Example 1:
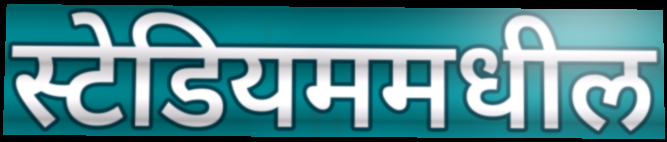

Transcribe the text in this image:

स्टेडियममधील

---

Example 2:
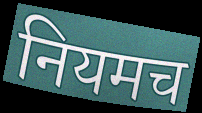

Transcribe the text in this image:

नियमच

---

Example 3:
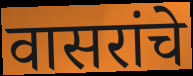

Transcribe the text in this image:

वासरांचे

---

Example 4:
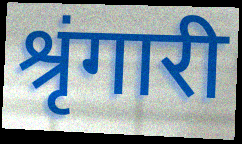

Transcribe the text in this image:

श्रृंगारी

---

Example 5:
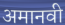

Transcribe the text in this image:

अमानवी